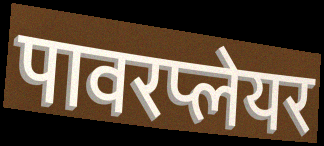
पावरप्लेयर